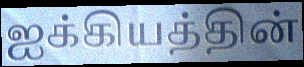
ஐக்கியத்தின்